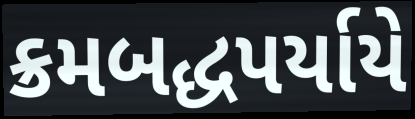
ક્રમબદ્ધપર્યાયે